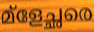
മ്ളേച്ഛരെ